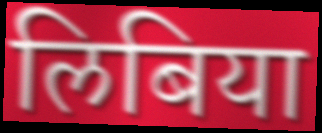
लिबिया